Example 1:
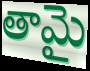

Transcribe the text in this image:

తామై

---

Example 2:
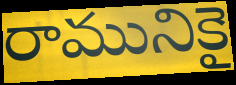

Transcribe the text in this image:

రామునికై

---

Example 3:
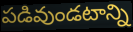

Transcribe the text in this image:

పడివుండటాన్ని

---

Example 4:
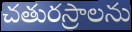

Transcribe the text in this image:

చతురస్రాలను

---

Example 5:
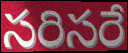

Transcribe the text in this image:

సరిసరే